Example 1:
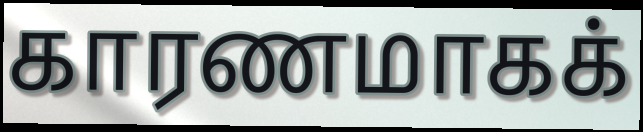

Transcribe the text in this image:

காரணமாகக்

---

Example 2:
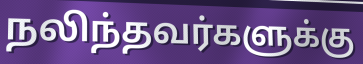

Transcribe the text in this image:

நலிந்தவர்களுக்கு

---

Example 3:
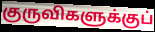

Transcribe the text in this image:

குருவிகளுக்குப்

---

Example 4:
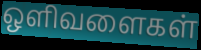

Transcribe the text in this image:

ஒளிவளைகள்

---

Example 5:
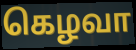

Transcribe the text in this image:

கெழவா